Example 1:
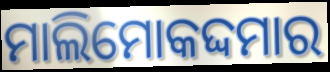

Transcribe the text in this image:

ମାଲିମୋକଦ୍ଦମାର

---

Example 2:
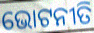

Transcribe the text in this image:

ଭୋଟନୀତି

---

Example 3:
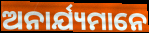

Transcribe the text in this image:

ଅନାର୍ଯ୍ୟମାନେ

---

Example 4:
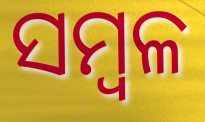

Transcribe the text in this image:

ସମ୍ବଳ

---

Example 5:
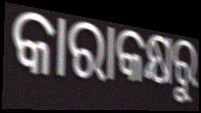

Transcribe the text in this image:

କାରାକକ୍ଷରୁ